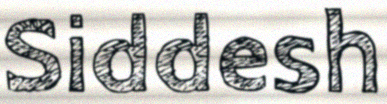
Siddesh